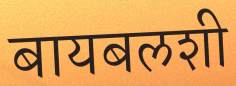
बायबलशी